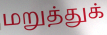
மறுத்துக்